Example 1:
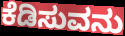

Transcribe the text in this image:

ಕೆಡಿಸುವನು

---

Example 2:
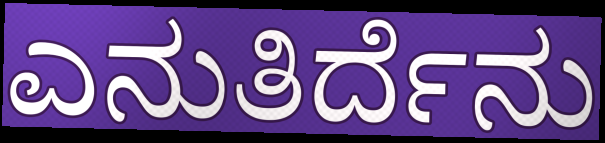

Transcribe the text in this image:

ಎನುತಿರ್ದೆನು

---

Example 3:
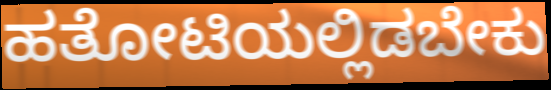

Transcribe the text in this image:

ಹತೋಟಿಯಲ್ಲಿಡಬೇಕು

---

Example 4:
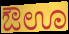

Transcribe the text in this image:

ಔಊ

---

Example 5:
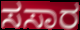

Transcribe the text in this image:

ಸಸಾರ